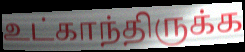
உட்காந்திருக்க